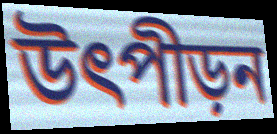
উৎপীড়ন